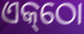
ଏକ୍‌ଠୋ